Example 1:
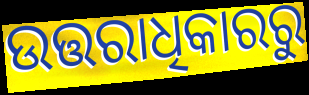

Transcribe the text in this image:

ଉତ୍ତରାଧିକାରରୁ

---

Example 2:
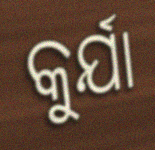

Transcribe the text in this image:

କୁର୍ଯା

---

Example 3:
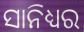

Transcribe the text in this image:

ସାନିଧ୍ୟର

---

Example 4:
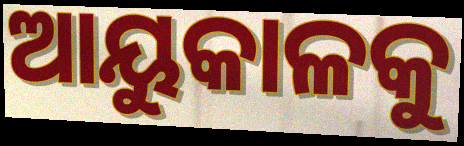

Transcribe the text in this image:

ଆୟୁକାଳକୁ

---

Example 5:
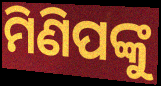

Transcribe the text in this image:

ମିଣିପଙ୍କୁ